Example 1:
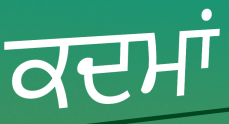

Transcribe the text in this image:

ਕਦਮਾਂ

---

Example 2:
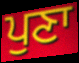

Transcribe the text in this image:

ਪੁਣਾ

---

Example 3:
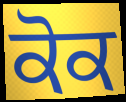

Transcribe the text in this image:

ਕੋਕ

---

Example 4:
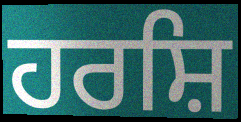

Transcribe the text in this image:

ਹਰਸ਼ਿ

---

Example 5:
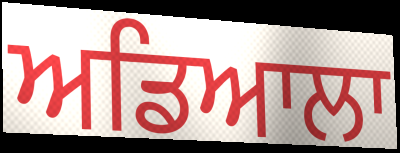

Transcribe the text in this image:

ਅਡਿਆਲਾ